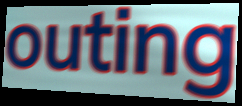
outing